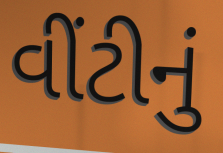
વીંટીનું